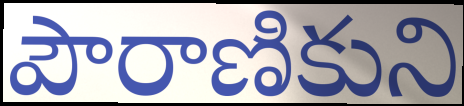
పౌరాణికుని